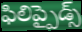
ఫిలిప్పైడ్స్